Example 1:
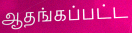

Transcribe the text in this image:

ஆதங்கப்பட்ட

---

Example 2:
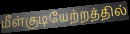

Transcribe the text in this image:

மீள்குடியேற்றத்தில்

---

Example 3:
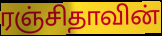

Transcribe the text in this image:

ரஞ்சிதாவின்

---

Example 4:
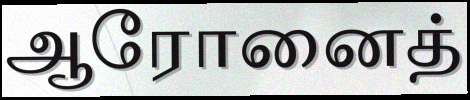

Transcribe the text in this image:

ஆரோனைத்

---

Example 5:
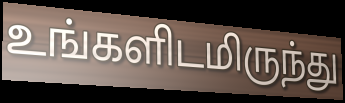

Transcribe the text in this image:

உங்களிடமிருந்து